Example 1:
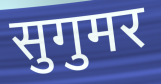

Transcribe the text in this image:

सुगुमर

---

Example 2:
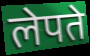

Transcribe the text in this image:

लेपते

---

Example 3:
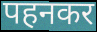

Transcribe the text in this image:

पहनकर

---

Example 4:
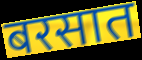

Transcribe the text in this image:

बरसात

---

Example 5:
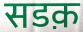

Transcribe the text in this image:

सडक़